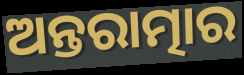
ଅନ୍ତରାତ୍ମାର